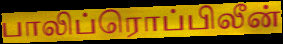
பாலிப்ரொப்பிலீன்